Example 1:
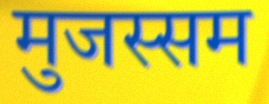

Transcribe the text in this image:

मुजस्सम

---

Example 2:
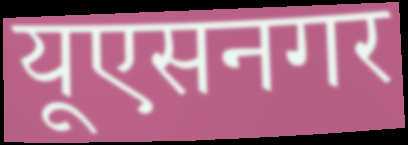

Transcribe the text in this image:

यूएसनगर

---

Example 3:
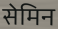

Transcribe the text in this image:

सेमिन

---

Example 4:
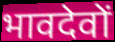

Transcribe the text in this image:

भावदेवों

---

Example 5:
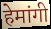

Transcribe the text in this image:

हेमांगी